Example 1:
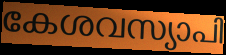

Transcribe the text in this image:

കേശവസ്യാപി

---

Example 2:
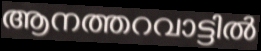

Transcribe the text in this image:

ആനത്തറവാട്ടിൽ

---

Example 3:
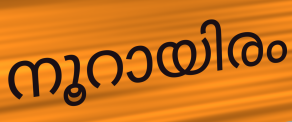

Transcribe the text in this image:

നൂറായിരം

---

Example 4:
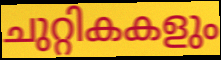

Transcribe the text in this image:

ചുറ്റികകളും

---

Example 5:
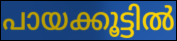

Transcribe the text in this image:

പായക്കൂട്ടിൽ